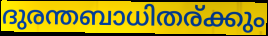
ദുരന്തബാധിതര്ക്കും